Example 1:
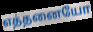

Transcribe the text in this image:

எத்தனையோ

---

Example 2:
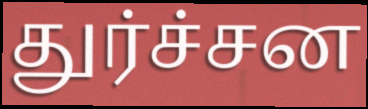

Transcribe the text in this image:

துர்ச்சன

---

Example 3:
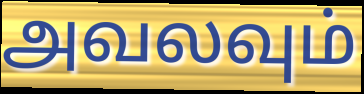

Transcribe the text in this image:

அவலவும்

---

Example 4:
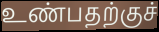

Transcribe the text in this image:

உண்பதற்குச்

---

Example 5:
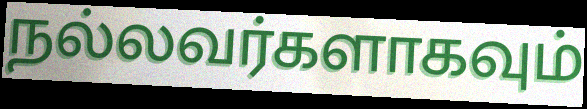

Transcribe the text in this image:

நல்லவர்களாகவும்